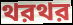
থরথর